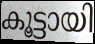
കൂട്ടായി